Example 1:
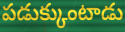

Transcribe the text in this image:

పడుక్కుంటాడు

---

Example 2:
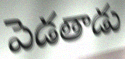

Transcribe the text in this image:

పెడతాడు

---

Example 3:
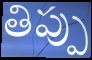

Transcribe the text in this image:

తిప్పు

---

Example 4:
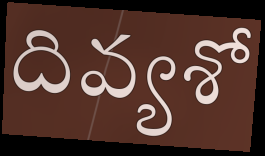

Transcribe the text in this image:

దివ్యశో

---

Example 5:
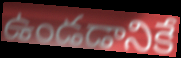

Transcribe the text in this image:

ఉండడానికే